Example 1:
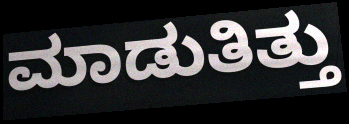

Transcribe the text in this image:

ಮಾಡುತಿತ್ತು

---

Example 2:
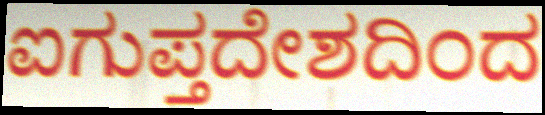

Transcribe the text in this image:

ಐಗುಪ್ತದೇಶದಿಂದ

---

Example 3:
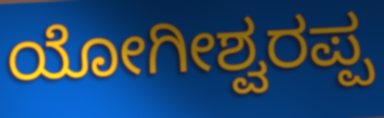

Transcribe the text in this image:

ಯೋಗೀಶ್ವರಪ್ಪ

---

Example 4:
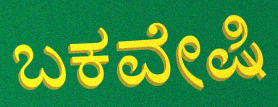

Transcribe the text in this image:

ಬಕವೇಷಿ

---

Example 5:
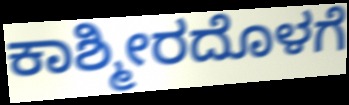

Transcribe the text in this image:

ಕಾಶ್ಮೀರದೊಳಗೆ